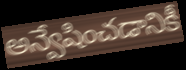
అన్వేషించడానికీ